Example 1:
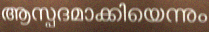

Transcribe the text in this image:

ആസ്പദമാക്കിയെന്നും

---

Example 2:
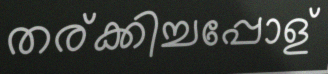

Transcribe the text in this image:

തര്ക്കിച്ചപ്പോള്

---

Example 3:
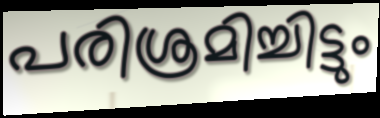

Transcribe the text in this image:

പരിശ്രമിച്ചിട്ടും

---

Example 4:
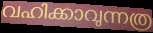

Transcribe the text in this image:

വഹിക്കാവുന്നത്ര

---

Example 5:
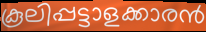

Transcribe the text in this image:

കൂലിപ്പട്ടാളക്കാരൻ